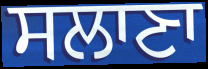
ਸਲਾਣਾ